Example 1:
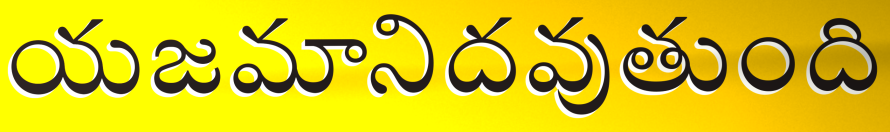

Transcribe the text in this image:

యజమానిదవుతుంది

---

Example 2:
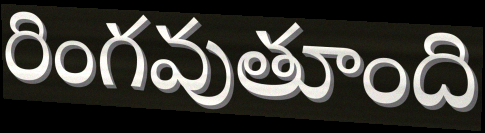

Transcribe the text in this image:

రింగవుతూంది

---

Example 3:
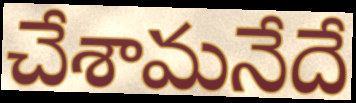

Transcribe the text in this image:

చేశామనేదే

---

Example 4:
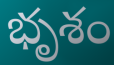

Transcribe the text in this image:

భృశం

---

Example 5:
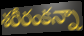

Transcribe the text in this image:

శరీరంకన్నా